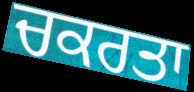
ਚਕਰਤਾ